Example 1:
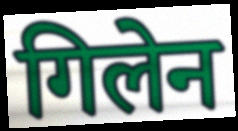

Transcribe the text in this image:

गिलेन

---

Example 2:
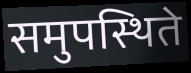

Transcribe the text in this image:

समुपस्थिते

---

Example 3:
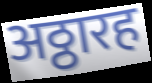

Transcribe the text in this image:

अठ्ठारह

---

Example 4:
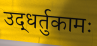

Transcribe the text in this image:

उद्धर्तुकामः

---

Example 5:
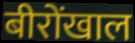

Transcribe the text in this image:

बीरोंखाल